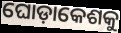
ଘୋଡ଼ାକେଶକୁ